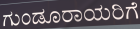
ಗುಂಡೂರಾಯರಿಗೆ